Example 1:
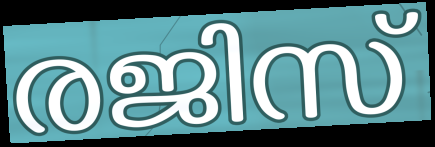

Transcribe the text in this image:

രജിസ്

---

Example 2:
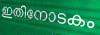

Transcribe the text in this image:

ഇതിനോടകം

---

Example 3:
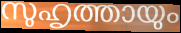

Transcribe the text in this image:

സുഹൃത്തായും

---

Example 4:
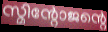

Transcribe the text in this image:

സ്മിന്റോജന്റെ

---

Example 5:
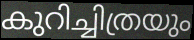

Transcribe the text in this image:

കുറിച്ചിത്രയും